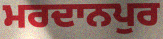
ਮਰਦਾਨਪੁਰ